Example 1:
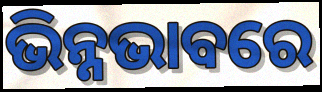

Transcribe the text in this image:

ଭିନ୍ନଭାବରେ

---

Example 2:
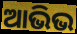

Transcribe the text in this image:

ଆଭିଭ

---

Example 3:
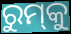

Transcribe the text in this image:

ରୁମ୍‍କୁ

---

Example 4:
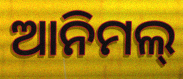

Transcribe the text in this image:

ଆନିମଲ୍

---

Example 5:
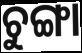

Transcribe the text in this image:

ଚୁଙ୍ଗା